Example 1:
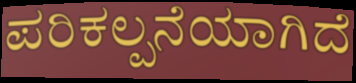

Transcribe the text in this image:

ಪರಿಕಲ್ಪನೆಯಾಗಿದೆ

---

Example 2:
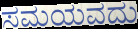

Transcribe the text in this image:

ಸಮಯವದು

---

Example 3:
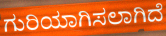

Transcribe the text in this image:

ಗುರಿಯಾಗಿಸಲಾಗಿದೆ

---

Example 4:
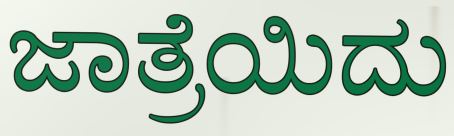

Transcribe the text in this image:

ಜಾತ್ರೆಯಿದು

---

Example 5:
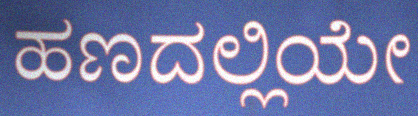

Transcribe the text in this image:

ಹಣದಲ್ಲಿಯೇ